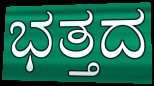
ಭತ್ತದ